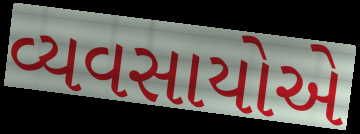
વ્યવસાયોએ